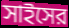
সাইসের